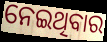
ନେଇଥିବାର